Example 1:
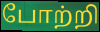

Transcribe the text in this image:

போற்றி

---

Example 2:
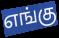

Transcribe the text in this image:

எங்கு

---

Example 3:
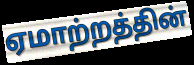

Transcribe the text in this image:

ஏமாற்றத்தின்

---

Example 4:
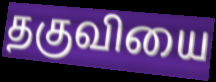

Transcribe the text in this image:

தகுவியை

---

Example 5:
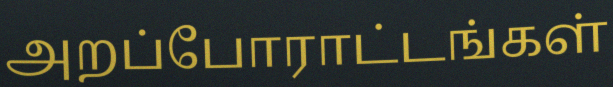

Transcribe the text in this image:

அறப்போராட்டங்கள்